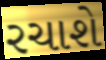
રચાશે